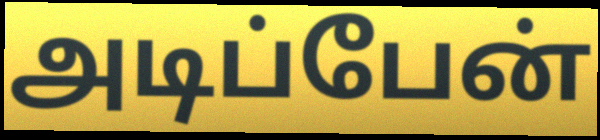
அடிப்பேன்